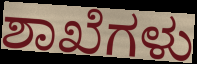
ಶಾಖೆಗಳು